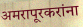
अमरापूरकरांना